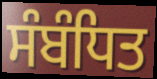
ਸੰਬੰਧਿਤ